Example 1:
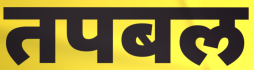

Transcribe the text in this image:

तपबल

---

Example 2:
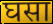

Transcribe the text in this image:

घसा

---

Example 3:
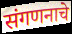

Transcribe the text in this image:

संगणनाचे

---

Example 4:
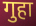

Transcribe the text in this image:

गुहा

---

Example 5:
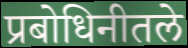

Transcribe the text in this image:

प्रबोधिनीतले